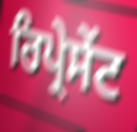
ਰਿਪ੍ਰੇਸੇੰਟ